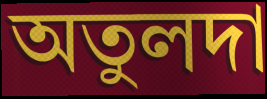
অতুলদা